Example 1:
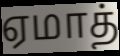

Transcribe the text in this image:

ஏமாத்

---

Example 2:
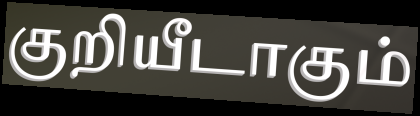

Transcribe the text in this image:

குறியீடாகும்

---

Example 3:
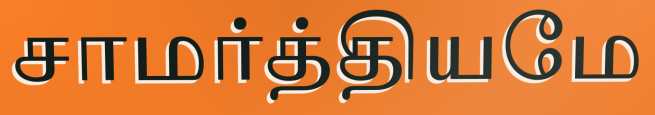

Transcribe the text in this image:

சாமர்த்தியமே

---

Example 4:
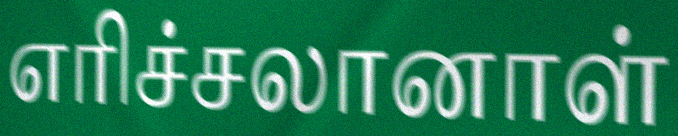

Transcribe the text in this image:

எரிச்சலானாள்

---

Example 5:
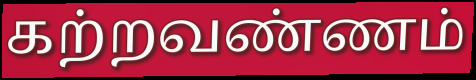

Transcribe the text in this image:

கற்றவண்ணம்